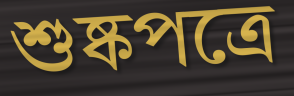
শুষ্কপত্রে